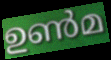
ഉൺമ